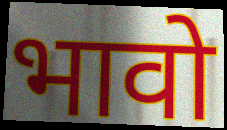
भावो